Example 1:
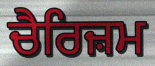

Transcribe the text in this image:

ਚੈਰਿਜ਼ਮ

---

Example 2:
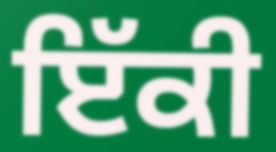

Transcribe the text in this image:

ਇੱਕੀ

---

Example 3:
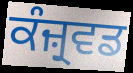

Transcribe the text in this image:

ਕੰਜ਼੍ਰਵਡ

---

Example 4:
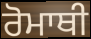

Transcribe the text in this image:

ਰੋਮਾਥੀ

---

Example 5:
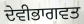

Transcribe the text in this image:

ਦੇਵੀਭਾਗਵਤ